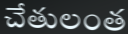
చేతులంత